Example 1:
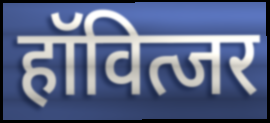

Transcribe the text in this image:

हॉवित्जर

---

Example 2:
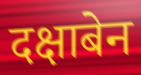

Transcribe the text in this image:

दक्षाबेन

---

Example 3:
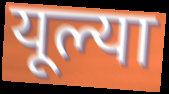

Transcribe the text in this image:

यूल्या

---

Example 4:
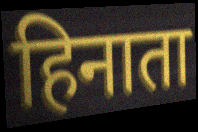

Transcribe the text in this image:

हिनाता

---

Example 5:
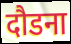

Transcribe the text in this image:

दौडना